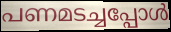
പണമടച്ചപ്പോൾ